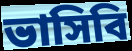
ভাসিবি